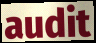
audit